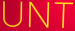
UNT